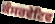
ਕੰਸਰਵੇਟਿਵ